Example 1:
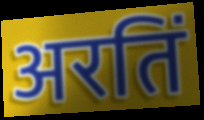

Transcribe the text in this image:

अरतिं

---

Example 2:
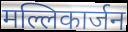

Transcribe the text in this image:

मल्लिकार्जन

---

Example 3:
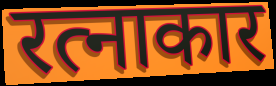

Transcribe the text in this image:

रत्नाकार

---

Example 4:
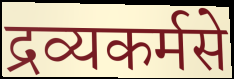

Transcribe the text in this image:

द्रव्यकर्मसे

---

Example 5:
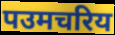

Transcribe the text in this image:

पउमचरिय